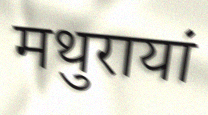
मथुरायां